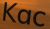
Kac